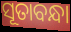
ସୂତାବନ୍ଧା